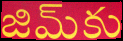
జిమ్‌కు